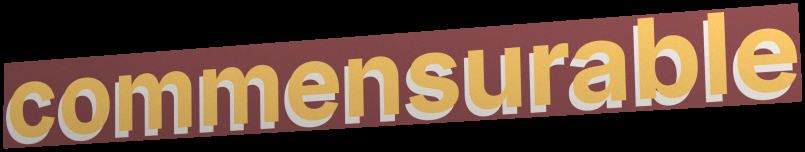
commensurable